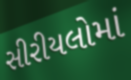
સીરીયલોમાં